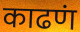
काढणं